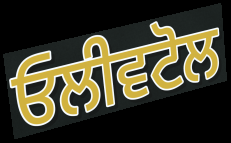
ਓਲੀਵਟੋਲ